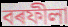
বৰফীলা